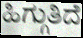
ಹಿಗ್ಗುತಿದೆ